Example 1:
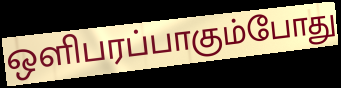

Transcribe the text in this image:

ஒளிபரப்பாகும்போது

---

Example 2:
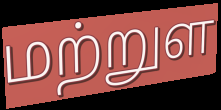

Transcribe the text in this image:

மற்றுள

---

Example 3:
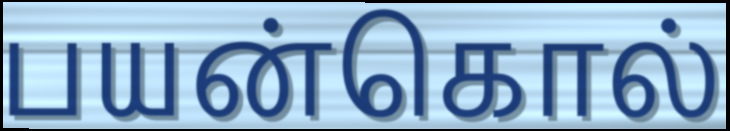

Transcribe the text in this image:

பயன்கொல்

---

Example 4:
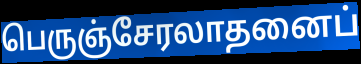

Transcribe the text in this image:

பெருஞ்சேரலாதனைப்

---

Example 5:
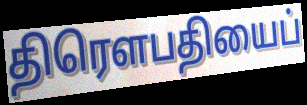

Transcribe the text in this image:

திரெளபதியைப்